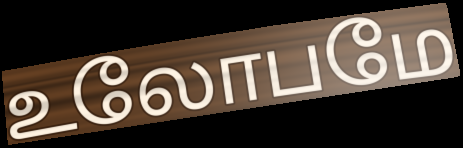
உலோபமே